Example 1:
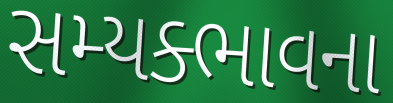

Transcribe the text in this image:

સમ્યક્ભાવના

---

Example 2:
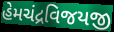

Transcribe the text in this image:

હેમચંદ્રવિજયજી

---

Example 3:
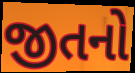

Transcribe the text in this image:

જીતનો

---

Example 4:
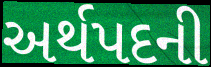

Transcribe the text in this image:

અર્થપદની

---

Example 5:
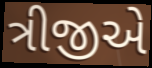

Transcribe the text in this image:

ત્રીજીએ